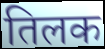
तिलक